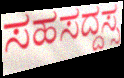
ಸಹಸದ್ದಸ್ಸ